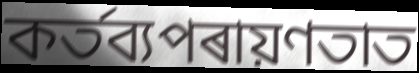
কৰ্তব্যপৰায়ণতাত